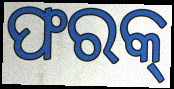
ଫରକ୍